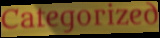
Categorized